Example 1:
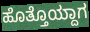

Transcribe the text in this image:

ಹೊತ್ತೊಯ್ದಾಗ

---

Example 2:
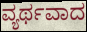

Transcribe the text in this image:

ವ್ಯರ್ಥವಾದ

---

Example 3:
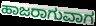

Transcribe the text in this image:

ಹಾಜರಾಗುವಾಗ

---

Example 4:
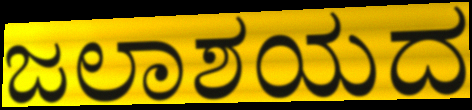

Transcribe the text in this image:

ಜಲಾಶಯದ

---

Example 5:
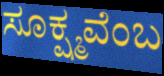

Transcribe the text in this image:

ಸೂಕ್ಷ್ಮವೆಂಬ